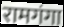
रामगंगा